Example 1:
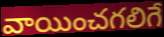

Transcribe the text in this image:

వాయించగలిగే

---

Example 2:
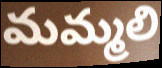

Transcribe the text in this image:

మమ్మలి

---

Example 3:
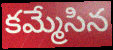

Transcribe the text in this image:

కమ్మేసిన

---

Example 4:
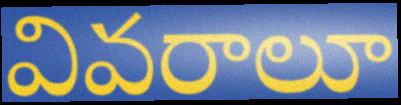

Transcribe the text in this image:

వివరాలూ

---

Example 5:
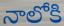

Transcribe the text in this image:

నాలోకి